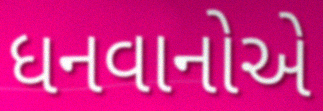
ધનવાનોએ